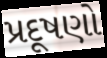
પ્રદૂષણો